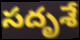
సదృశే